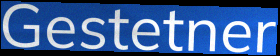
Gestetner